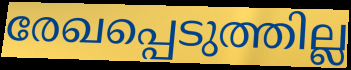
രേഖപ്പെടുത്തില്ല